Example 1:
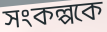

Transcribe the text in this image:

সংকল্পকে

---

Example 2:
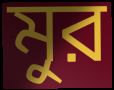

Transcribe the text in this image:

মুর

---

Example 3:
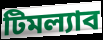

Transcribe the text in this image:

টিমল্যাব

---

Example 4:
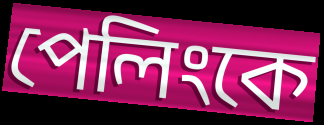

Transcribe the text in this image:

পেলিংকে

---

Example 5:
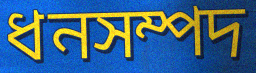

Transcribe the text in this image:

ধনসম্পদ